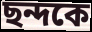
ছন্দকে